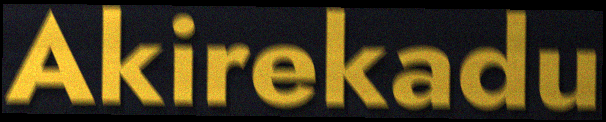
Akirekadu